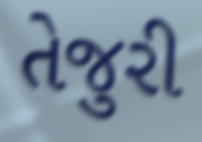
તેજુરી